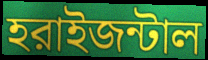
হরাইজন্টাল